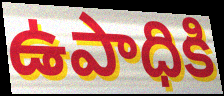
ఉపాధికి